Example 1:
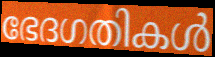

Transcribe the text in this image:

ഭേദഗതികൾ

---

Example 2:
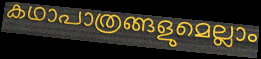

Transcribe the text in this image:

കഥാപാത്രങ്ങളുമെല്ലാം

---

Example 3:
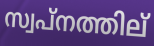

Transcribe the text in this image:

സ്വപ്നത്തില്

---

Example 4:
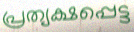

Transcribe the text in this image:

പ്രത്യക്ഷപ്പെട്ട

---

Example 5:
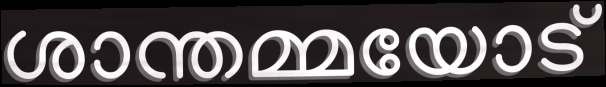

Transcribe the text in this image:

ശാന്തമ്മയോട്